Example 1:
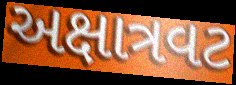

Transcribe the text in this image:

અક્ષાત્રવટ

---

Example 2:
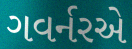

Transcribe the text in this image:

ગવર્નરએ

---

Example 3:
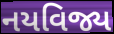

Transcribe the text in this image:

નયવિજ્ય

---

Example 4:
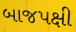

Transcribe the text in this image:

બાજપક્ષી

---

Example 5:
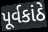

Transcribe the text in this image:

પૂર્વકાંઠે